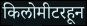
किलोमीटरहून